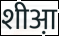
शीआ़